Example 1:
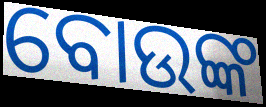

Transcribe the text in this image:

ବୋଉଙ୍କ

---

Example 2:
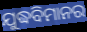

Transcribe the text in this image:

ଯୁଦ୍ଧବିମାନର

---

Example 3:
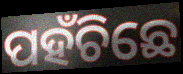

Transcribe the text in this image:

ପହଁଚିଛେ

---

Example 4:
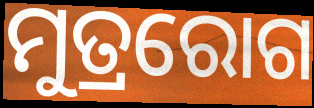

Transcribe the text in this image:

ମୁତ୍ରରୋଗ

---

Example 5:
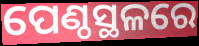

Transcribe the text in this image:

ପେଣ୍ଠସ୍ଥଳରେ